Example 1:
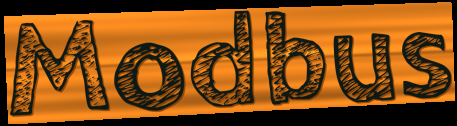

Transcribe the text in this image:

Modbus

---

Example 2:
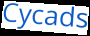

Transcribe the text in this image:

Cycads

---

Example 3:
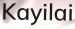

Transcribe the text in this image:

Kayilai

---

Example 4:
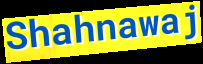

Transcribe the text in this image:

Shahnawaj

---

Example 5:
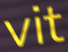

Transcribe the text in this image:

vit